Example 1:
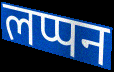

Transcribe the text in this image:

लप्पन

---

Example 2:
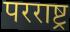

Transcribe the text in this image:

परराष्ट्र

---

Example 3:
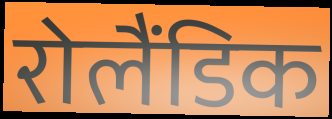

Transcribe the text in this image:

रोलैंडिक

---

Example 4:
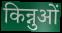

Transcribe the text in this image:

किन्नुओं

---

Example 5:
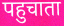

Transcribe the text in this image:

पहुचाता